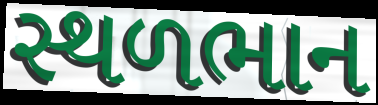
સ્થળભાન